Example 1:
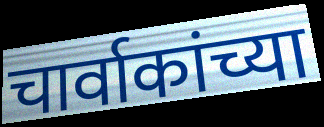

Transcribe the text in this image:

चार्वाकांच्या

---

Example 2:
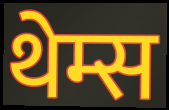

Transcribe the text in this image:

थेम्स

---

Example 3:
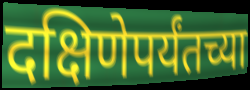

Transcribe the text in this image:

दक्षिणेपर्यंतच्या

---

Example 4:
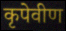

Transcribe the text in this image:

कृपेवीण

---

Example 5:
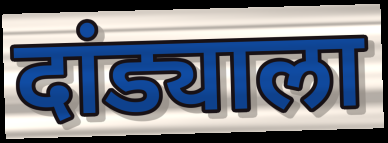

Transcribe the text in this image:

दांड्याला